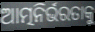
ଆତ୍ମନିର୍ଭରତାକୁ